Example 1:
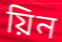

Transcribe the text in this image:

য়িন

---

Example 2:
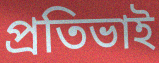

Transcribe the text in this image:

প্ৰতিভাই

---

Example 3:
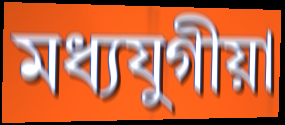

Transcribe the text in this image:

মধ্যযুগীয়া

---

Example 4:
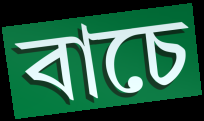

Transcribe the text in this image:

বাচে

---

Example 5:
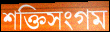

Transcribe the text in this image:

শক্তিসংগম